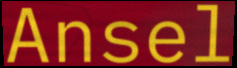
Ansel